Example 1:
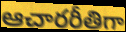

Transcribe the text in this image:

ఆచారరీతిగా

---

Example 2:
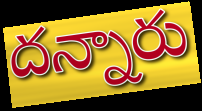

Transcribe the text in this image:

దన్నారు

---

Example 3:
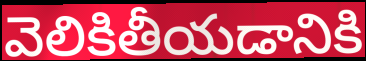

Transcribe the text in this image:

వెలికితీయడానికి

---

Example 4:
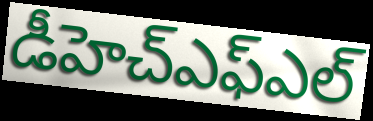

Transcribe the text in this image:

డీహెచ్ఎఫ్ఎల్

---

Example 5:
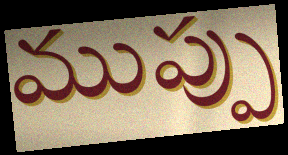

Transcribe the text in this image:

ముప్పు